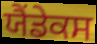
ਯੈਂਡੇਕਸ